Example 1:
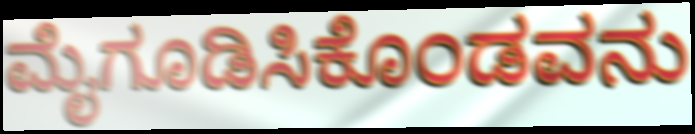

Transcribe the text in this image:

ಮೈಗೂಡಿಸಿಕೊಂಡವನು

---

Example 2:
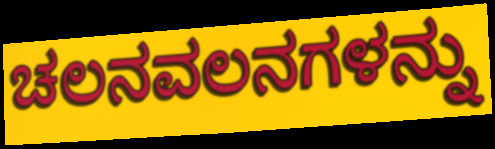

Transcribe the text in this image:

ಚಲನವಲನಗಳನ್ನು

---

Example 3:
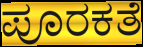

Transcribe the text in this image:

ಪೂರಕತೆ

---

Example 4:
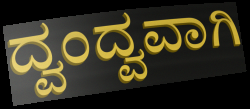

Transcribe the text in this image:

ದ್ವಂದ್ವವಾಗಿ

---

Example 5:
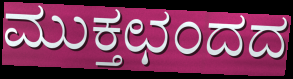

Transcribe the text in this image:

ಮುಕ್ತಛಂದದ